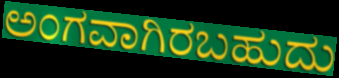
ಅಂಗವಾಗಿರಬಹುದು